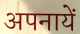
अपनायें